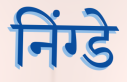
निंग्डे